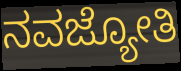
ನವಜ್ಯೋತಿ